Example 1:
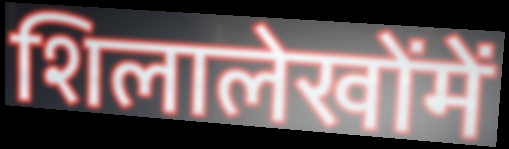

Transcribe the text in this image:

शिलालेखोंमें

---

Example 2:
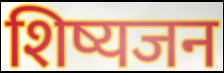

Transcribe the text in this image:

शिष्यजन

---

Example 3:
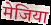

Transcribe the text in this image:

मेजिया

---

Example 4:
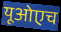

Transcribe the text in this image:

यूओएच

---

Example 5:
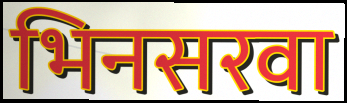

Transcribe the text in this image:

भिनसरवा